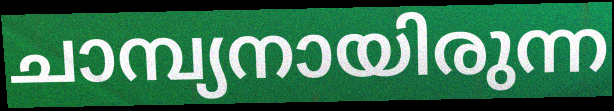
ചാമ്പ്യനായിരുന്ന